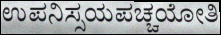
ಉಪನಿಸ್ಸಯಪಚ್ಚಯೋತಿ